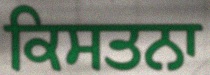
ਕਿਸਤਨਾ